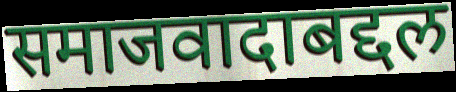
समाजवादाबद्दल